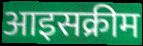
आइसक्रीम